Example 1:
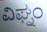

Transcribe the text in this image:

ವಿಘ್ನಂ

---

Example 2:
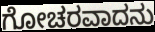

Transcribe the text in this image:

ಗೋಚರವಾದನು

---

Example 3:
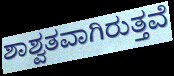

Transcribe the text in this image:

ಶಾಶ್ವತವಾಗಿರುತ್ತವೆ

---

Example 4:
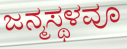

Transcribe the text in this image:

ಜನ್ಮಸ್ಥಳವೂ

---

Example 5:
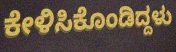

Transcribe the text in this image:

ಕೇಳಿಸಿಕೊಂಡಿದ್ದಳು